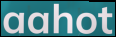
aahot